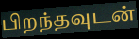
பிறந்தவுடன்